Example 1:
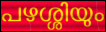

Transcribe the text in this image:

പഴശ്ശിയും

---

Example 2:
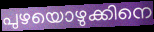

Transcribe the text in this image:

പുഴയൊഴുക്കിനെ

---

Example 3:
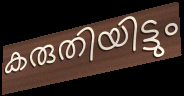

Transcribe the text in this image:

കരുതിയിട്ടും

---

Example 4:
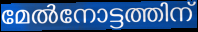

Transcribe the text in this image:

മേൽനോട്ടത്തിന്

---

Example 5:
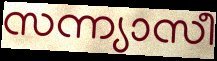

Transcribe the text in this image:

സന്ന്യാസീ